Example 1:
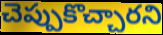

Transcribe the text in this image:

చెప్పుకొచ్చారని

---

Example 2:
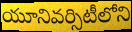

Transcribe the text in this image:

యూనివర్సిటీలోని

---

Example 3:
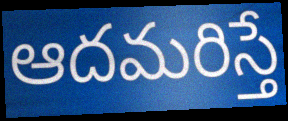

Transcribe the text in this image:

ఆదమరిస్తే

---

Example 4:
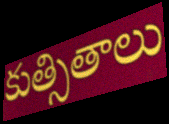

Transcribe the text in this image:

కుత్సితాలు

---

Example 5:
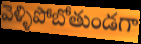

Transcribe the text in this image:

వెళ్ళిపోబోతుండగా